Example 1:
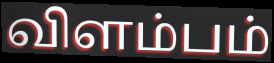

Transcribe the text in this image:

விளம்பம்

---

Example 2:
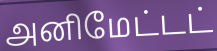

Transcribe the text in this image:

அனிமேட்டட்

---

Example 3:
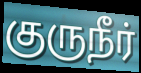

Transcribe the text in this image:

குருநீர்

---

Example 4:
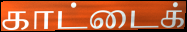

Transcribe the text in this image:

காட்டைக்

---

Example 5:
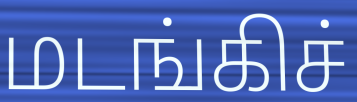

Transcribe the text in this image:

மடங்கிச்